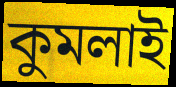
কুমলাই